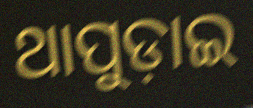
ଥାପୁଡ଼ାଇ